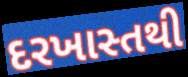
દરખાસ્તથી